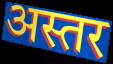
अस्तर